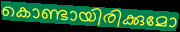
കൊണ്ടായിരിക്കുമോ